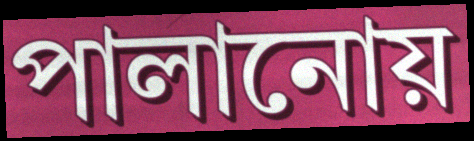
পালানোয়